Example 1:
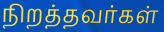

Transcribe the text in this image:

நிறத்தவர்கள்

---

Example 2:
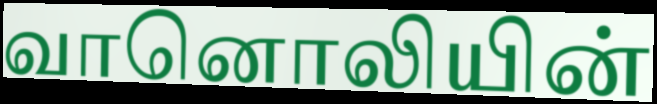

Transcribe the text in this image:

வானொலியின்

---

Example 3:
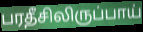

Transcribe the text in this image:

பரதீசிலிருப்பாய்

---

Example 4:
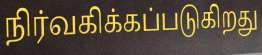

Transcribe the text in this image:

நிர்வகிக்கப்படுகிறது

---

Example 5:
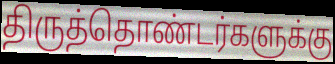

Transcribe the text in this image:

திருத்தொண்டர்களுக்கு